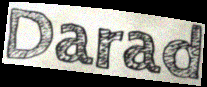
Darad